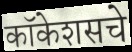
कॉकेशसचे